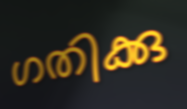
ഗതിക്കു